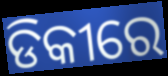
ଡିକୀରେ